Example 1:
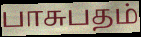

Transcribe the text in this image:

பாசுபதம்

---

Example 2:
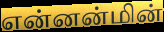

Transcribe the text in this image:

என்னன்மின்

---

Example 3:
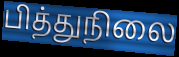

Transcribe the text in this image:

பித்துநிலை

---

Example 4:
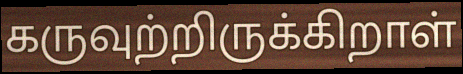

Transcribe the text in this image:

கருவுற்றிருக்கிறாள்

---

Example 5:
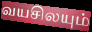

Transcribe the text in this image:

வயசிலயும்